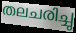
തലചരിച്ചു